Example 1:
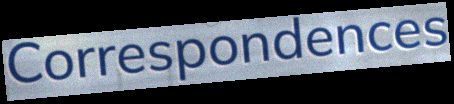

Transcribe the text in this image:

Correspondences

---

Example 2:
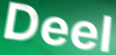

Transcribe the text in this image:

Deel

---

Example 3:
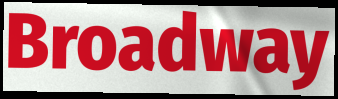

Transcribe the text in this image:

Broadway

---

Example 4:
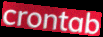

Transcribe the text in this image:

crontab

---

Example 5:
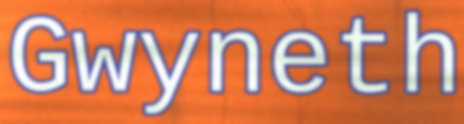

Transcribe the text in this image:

Gwyneth